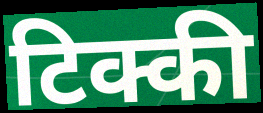
टिक्की